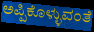
ಅಪ್ಪಿಕೊಳ್ಳುವಂತೆ